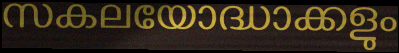
സകലയോദ്ധാക്കളും